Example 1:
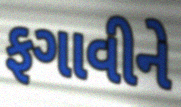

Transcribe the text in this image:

ફગાવીને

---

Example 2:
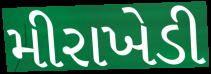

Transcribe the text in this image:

મીરાખેડી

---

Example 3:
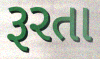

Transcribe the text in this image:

રૂરતા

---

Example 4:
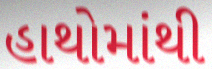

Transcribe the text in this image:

હાથોમાંથી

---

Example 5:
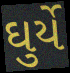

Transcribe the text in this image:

ઘુર્યે